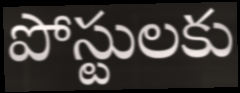
పోస్టులకు